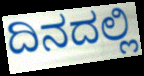
ದಿನದಲ್ಲಿ